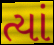
ત્યાં